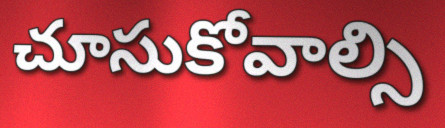
చూసుకోవాల్సి